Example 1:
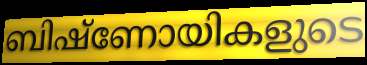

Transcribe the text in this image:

ബിഷ്ണോയികളുടെ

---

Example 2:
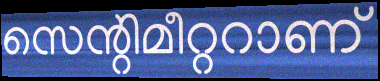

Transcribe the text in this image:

സെന്റിമീറ്ററാണ്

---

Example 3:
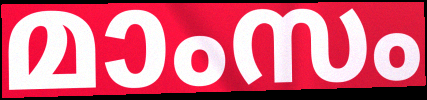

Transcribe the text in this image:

മാംസം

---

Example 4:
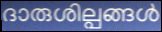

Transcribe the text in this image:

ദാരുശില്പങ്ങൾ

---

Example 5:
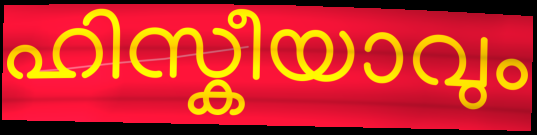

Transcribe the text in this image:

ഹിസ്കീയാവും